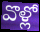
వొళ్లో